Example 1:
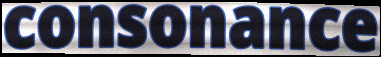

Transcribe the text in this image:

consonance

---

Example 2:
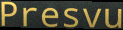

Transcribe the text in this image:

Presvu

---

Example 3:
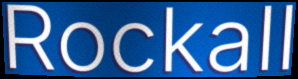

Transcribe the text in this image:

Rockall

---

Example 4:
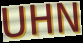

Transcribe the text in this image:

UHN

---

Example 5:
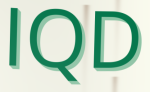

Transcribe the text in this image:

IQD